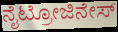
ನೈಟ್ರೋಜಿನೇಸ್